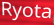
Ryota